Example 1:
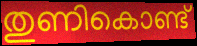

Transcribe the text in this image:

തുണികൊണ്ട്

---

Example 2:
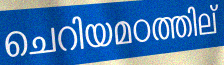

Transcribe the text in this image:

ചെറിയമഠത്തില്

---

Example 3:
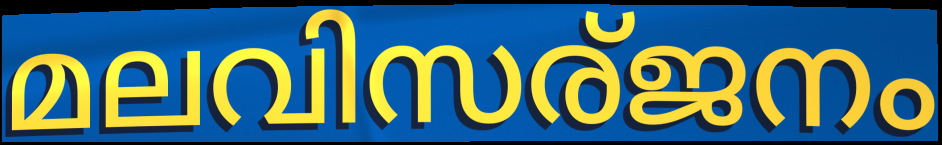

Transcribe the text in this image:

മലവിസര്ജനം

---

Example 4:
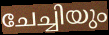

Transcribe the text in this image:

ചേച്ചിയും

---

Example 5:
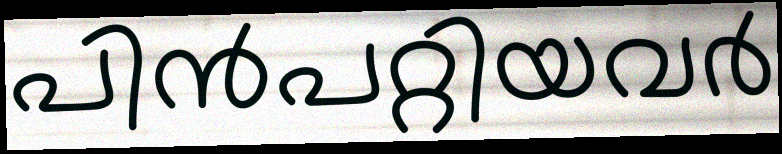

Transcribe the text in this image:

പിൻപറ്റിയവർ